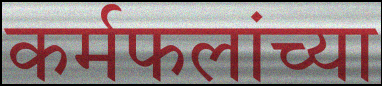
कर्मफलांच्या